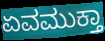
ಏವಮುಕ್ತಾ